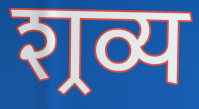
श्रव्य